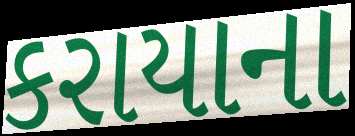
કરાયાના